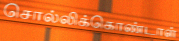
சொல்லிக்கொண்டாள்